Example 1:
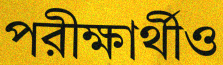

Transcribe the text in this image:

পরীক্ষার্থীও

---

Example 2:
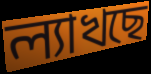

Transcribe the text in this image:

ল্যাখছে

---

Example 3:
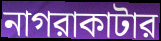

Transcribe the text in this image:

নাগরাকাটার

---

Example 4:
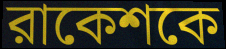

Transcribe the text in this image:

রাকেশকে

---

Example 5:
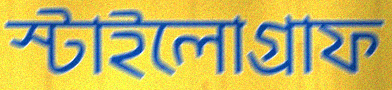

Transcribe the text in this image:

স্টাইলোগ্রাফ